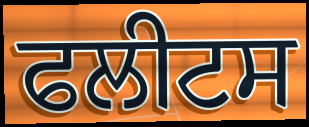
ਫਲੀਟਸ